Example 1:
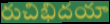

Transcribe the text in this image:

రుచిభిదయా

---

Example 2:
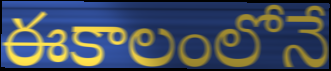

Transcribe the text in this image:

ఈకాలంలోనే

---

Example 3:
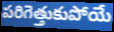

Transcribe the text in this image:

పరిగెత్తుకుపోయే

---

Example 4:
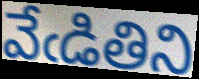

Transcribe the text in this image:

వేఁడితిని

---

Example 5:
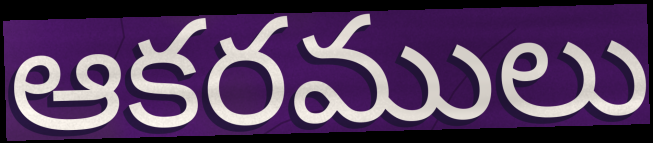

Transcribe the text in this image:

ఆకరములు